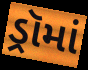
ડ્રૉમાં